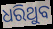
ଧରିଥୁବ